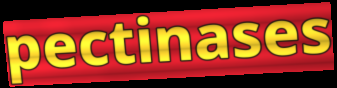
pectinases